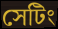
সেটিং